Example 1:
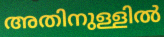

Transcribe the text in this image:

അതിനുള്ളിൽ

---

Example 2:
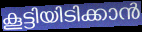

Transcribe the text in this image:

കൂട്ടിയിടിക്കാൻ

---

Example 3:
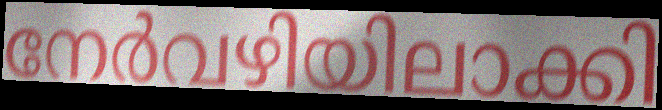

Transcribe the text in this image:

നേർവഴിയിലാക്കി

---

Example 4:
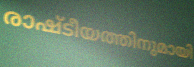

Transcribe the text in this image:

രാഷ്ടീയത്തിനുമായി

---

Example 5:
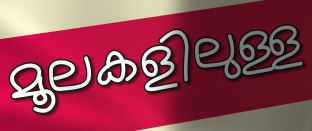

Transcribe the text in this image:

മൂലകളിലുള്ള